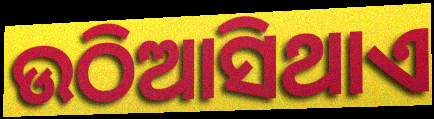
ଉଠିଆସିଥାଏ